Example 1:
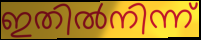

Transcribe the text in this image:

ഇതിൽനിന്ന്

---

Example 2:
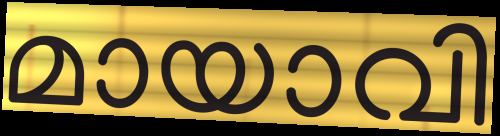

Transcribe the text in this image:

മായാവി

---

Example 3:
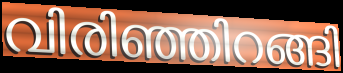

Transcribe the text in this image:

വിരിഞ്ഞിറങ്ങി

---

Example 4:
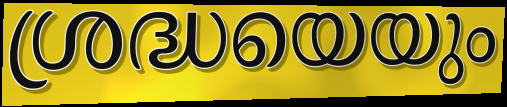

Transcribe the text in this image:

ശ്രദ്ധയെയും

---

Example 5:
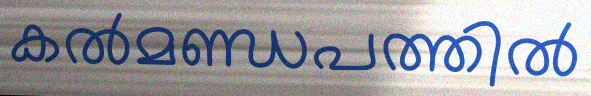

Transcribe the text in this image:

കൽമണ്ഡപത്തിൽ